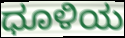
ಧೂಳಿಯ